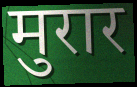
मुरार